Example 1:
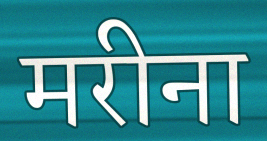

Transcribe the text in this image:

मरीना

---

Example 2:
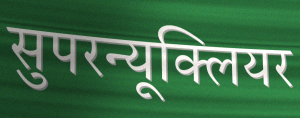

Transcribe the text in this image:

सुपरन्यूक्लियर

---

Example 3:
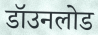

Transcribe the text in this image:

डॉउनलोड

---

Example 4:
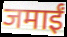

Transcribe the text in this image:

जमाईं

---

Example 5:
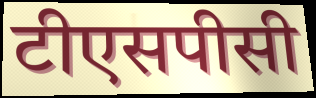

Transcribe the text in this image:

टीएसपीसी